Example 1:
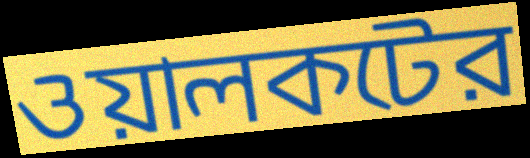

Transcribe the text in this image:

ওয়ালকটের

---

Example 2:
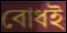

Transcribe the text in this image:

বোধই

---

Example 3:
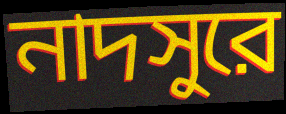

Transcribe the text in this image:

নাদসুরে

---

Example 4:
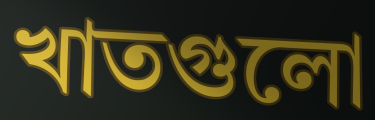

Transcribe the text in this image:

খাতগুলো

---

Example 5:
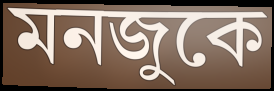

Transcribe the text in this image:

মনজুকে